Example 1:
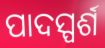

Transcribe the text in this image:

ପାଦସ୍ପର୍ଶ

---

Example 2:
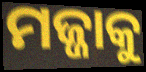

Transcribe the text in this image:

ମଜ୍ଜାକୁ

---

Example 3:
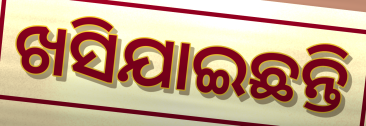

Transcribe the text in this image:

ଖସିଯାଇଛନ୍ତି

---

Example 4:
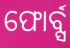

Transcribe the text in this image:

ଫୋର୍ବ୍ସ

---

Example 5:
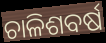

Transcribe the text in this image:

ଚାଳିଶବର୍ଷ